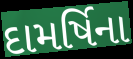
દામર્ષિના